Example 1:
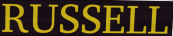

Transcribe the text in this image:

RUSSELL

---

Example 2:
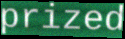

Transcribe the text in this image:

prized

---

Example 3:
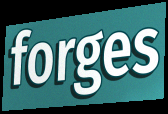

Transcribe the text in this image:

forges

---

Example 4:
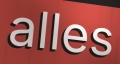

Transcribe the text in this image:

alles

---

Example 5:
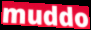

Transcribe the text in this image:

muddo